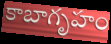
కాబాగృహం